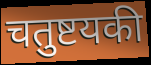
चतुष्टयकी